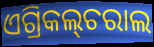
ଏଗ୍ରିକଲ୍‌ଚରାଲ